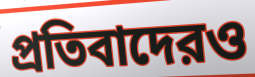
প্রতিবাদেরও